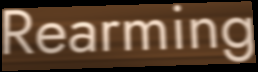
Rearming